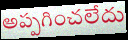
అప్పగించలేదు